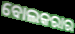
ବୋଲକରାର